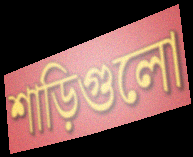
শাড়িগুলো